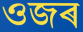
ওজৰ